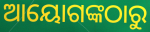
ଆୟୋଗଙ୍କଠାରୁ